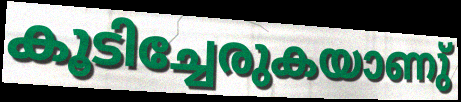
കൂടിച്ചേരുകയാണു്